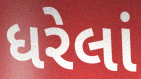
ધરેલાં